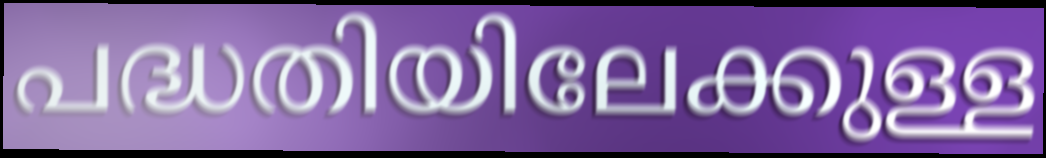
പദ്ധതിയിലേക്കുള്ള